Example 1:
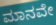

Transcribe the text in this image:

ಮಾನವೇ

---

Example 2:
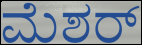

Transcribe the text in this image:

ಮೆಶರ್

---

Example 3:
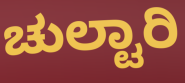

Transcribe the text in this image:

ಚುಲ್ಟಾರಿ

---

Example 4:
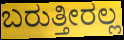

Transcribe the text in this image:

ಬರುತ್ತೀರಲ್ಲ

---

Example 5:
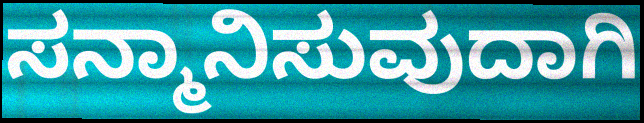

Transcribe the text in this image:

ಸನ್ಮಾನಿಸುವುದಾಗಿ